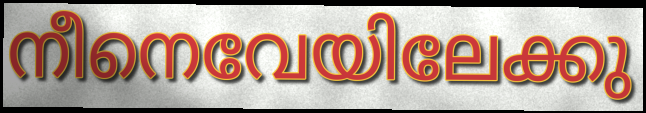
നീനെവേയിലേക്കു